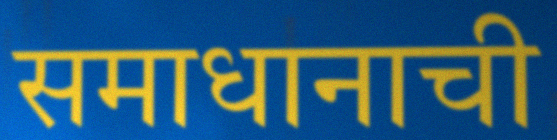
समाधानाची